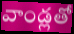
వాండ్లతో